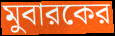
মুবারকের